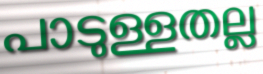
പാടുള്ളതല്ല